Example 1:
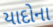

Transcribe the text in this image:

યાદોના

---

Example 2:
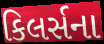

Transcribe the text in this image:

કિલર્સના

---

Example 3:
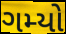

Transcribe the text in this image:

ગમ્યો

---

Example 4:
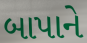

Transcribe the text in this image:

બાપાને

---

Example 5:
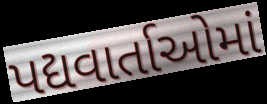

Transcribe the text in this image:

પદ્યવાર્તાઓમાં